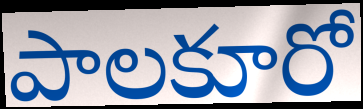
పాలకూరో